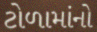
ટોળામાંનો